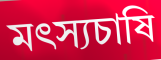
মৎস্যচাষি